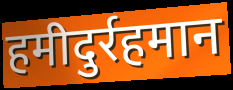
हमीदुर्रहमान